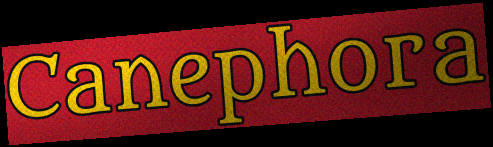
Canephora